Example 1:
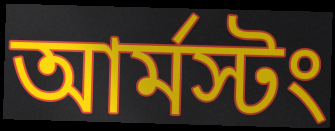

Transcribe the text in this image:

আর্মস্টং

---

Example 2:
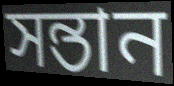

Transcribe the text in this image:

সন্তান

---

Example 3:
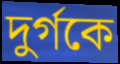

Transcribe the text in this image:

দুর্গকে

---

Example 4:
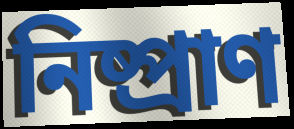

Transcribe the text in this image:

নিষ্প্রাণ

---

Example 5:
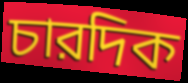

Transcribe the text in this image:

চারদিক